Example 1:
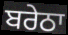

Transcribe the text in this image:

ਬਰੇਠਾ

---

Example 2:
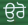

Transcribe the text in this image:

ਉਰੋ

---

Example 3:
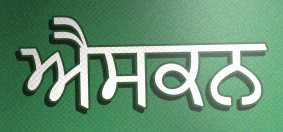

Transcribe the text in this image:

ਐਸਕਨ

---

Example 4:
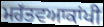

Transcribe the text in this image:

ਮਹੱਤਵਆਕਾਂਖੀ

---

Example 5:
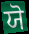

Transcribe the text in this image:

ਯੋ